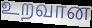
உறவான